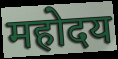
महोदय